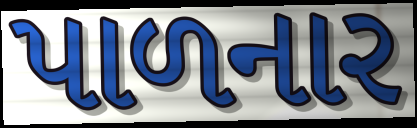
પાળનાર